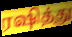
ரஷித்து